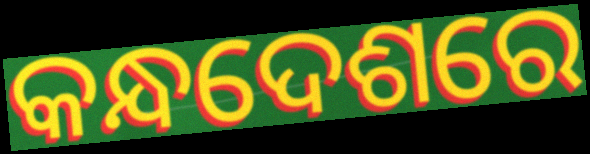
କନ୍ଧଦେଶରେ